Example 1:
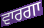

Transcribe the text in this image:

ਵਾਰਗਾ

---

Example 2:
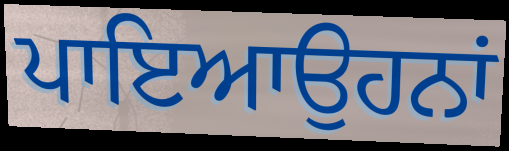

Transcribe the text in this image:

ਪਾਇਆਉਹਨਾਂ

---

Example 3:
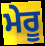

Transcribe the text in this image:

ਮੇਰੂ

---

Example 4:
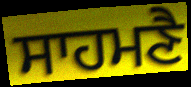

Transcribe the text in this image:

ਸਾਹਮਣੈ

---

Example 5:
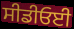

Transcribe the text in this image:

ਸੀਡੀਓਈ